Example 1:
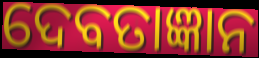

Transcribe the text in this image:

ଦେବତାଜ୍ଞାନ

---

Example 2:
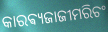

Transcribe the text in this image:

କାରଵ୍ଯଜାଜୀମରିଚଂ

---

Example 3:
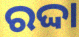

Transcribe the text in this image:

ରଦ୍ଦା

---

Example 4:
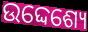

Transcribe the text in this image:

ଉଦ୍ଦେଶ୍ୟେ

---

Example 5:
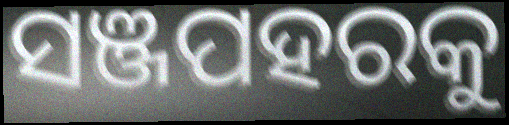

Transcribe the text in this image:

ସଞ୍ଜପହରକୁ